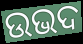
ଉଭଦ